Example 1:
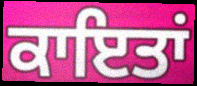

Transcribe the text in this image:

ਕਾਇਤਾਂ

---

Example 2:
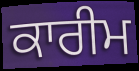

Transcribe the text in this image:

ਕਾਰੀਮ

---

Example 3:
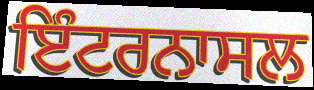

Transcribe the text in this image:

ਇੰਟਰਨਾਸਲ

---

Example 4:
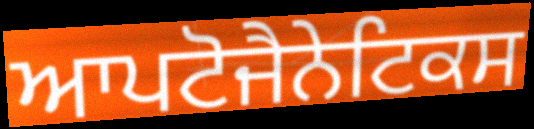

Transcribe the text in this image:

ਆਪਟੋਜੈਨੇਟਿਕਸ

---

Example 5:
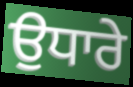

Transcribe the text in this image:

ਉਧਾਰੇ